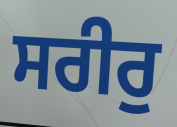
ਸਰੀਰੁ